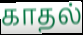
காதல்